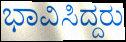
ಭಾವಿಸಿದ್ದರು